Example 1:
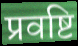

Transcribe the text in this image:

प्रवष्टि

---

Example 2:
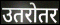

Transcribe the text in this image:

उतरोतर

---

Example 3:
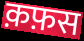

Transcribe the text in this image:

क़फ़स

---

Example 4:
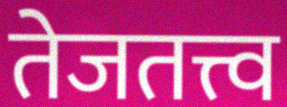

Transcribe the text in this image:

तेजतत्त्व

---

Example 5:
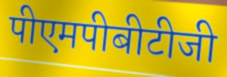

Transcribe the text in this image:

पीएमपीबीटीजी